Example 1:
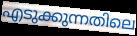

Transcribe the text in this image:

എടുക്കുന്നതിലെ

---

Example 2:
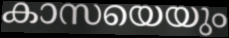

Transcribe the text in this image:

കാസയെയും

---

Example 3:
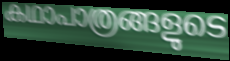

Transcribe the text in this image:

കഥാപാത്രങ്ങളുടെ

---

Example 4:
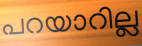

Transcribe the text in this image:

പറയാറില്ല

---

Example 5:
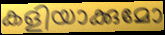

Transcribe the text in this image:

കളിയാക്കുമോ